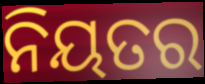
ନିୟତର